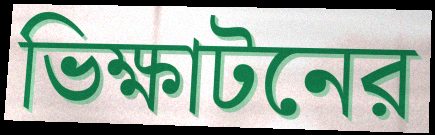
ভিক্ষাটনের